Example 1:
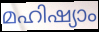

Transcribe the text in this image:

മഹിഷ്യാം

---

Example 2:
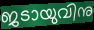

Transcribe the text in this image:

ജടായുവിനു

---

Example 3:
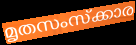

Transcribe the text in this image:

മൃതസംസ്‌ക്കാര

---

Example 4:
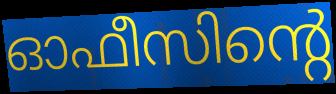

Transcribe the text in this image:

ഓഫീസിന്റെ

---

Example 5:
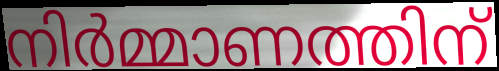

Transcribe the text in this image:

നിർമ്മാണത്തിന്